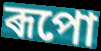
ৰূপো